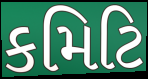
કમિટિ